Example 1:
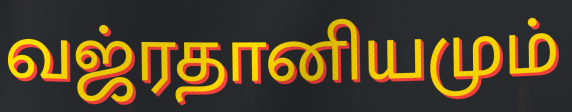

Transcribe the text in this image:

வஜ்ரதானியமும்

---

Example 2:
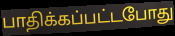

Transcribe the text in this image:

பாதிக்கப்பட்டபோது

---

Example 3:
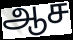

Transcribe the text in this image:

ஆச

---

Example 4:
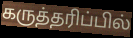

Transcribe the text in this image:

கருத்தரிப்பில்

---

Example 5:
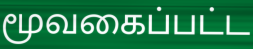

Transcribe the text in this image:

மூவகைப்பட்ட